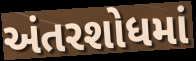
અંતરશોધમાં